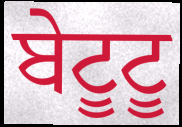
ਬੇਟੂਟੂ